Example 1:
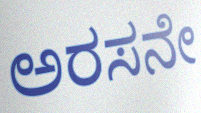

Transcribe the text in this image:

ಅರಸನೇ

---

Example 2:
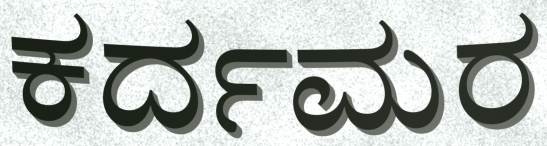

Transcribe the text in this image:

ಕರ್ದಮರ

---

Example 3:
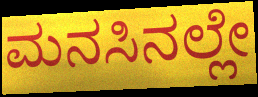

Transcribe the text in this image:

ಮನಸಿನಲ್ಲೇ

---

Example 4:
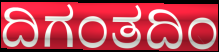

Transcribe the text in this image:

ದಿಗಂತದಿಂ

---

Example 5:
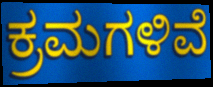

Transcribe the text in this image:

ಕ್ರಮಗಳಿವೆ